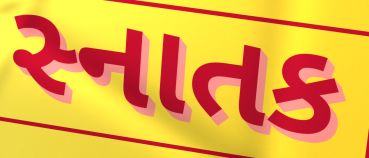
સ્નાતક